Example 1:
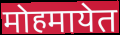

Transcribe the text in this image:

मोहमायेत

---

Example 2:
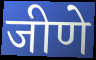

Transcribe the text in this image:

जीणे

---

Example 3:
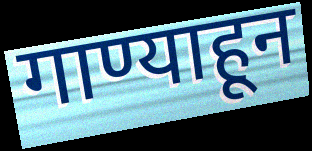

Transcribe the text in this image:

गाण्याहून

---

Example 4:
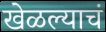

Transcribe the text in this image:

खेळल्याचं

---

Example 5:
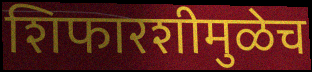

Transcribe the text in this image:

शिफारशीमुळेच